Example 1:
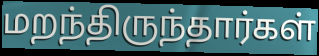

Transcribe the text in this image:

மறந்திருந்தார்கள்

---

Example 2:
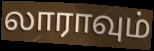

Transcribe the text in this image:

லாராவும்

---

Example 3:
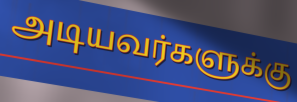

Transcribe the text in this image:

அடியவர்களுக்கு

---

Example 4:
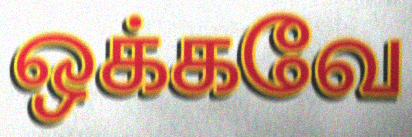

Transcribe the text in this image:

ஒக்கவே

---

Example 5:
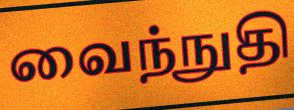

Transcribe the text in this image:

வைந்நுதி